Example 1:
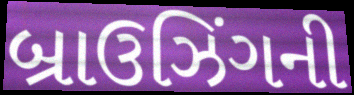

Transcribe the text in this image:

બ્રાઉઝિંગની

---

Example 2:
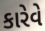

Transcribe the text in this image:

કારેવે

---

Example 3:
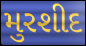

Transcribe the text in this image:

મુરશીદ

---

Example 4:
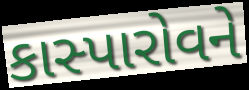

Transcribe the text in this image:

કાસ્પારોવને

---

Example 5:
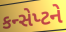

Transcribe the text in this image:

કન્સેપ્ટને